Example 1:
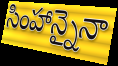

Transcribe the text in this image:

సింహాన్నైనా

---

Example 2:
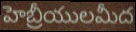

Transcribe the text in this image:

హెబ్రీయులమీద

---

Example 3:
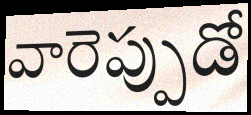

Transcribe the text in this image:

వారెప్పుడో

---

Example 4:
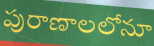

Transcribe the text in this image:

పురాణాలలోనూ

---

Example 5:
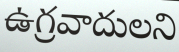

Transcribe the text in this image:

ఉగ్రవాదులని